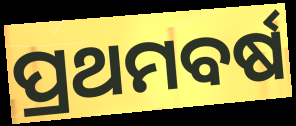
ପ୍ରଥମବର୍ଷ